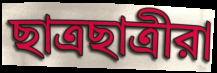
ছাত্রছাত্রীরা